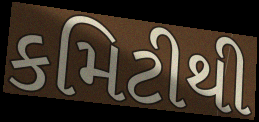
કમિટીથી